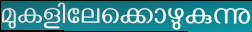
മുകളിലേക്കൊഴുകുന്നു